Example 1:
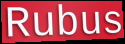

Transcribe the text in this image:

Rubus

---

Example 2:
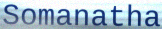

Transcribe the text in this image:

Somanatha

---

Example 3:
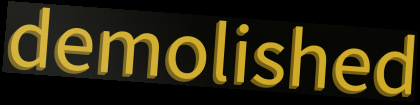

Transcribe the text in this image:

demolished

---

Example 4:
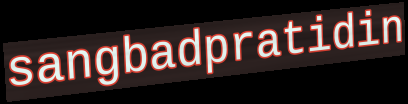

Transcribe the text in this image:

sangbadpratidin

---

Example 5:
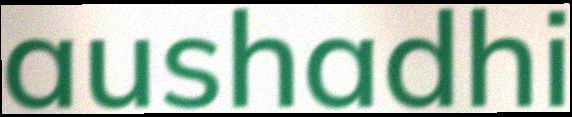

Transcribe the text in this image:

aushadhi